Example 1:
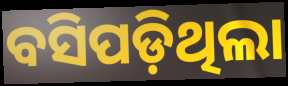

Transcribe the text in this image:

ବସିପଡ଼ିଥିଲା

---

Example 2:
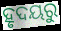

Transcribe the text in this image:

ହୃଦୟରୁ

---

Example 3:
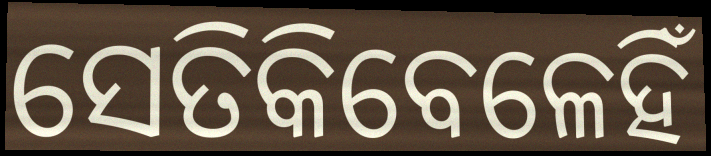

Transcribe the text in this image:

ସେତିକିବେଳେହିଁ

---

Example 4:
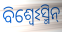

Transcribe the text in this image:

ବିଶ୍ଵେଽସ୍ମିନ୍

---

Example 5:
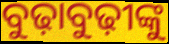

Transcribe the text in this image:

ବୁଢ଼ାବୁଢ଼ୀଙ୍କୁ